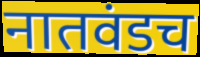
नातवंडच